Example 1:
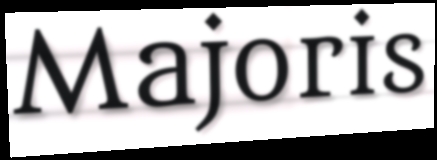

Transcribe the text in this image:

Majoris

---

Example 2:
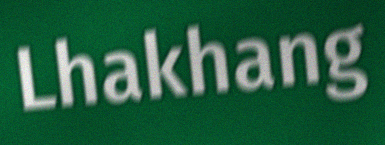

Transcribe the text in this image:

Lhakhang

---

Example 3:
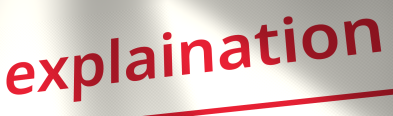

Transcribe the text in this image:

explaination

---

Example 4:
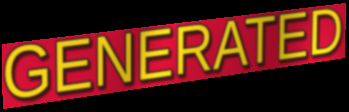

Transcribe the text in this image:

GENERATED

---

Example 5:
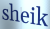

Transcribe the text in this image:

sheik